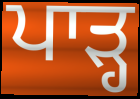
ਪਾੜ੍ਹ